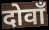
दोवाँ